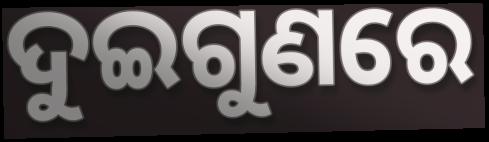
ଦୁଇଗୁଣରେ